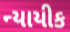
ન્યાયીક